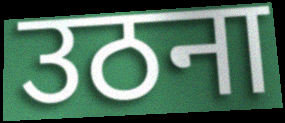
उठना